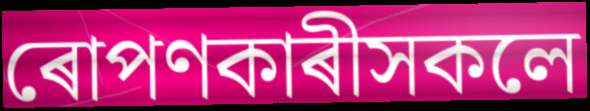
ৰোপণকাৰীসকলে